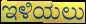
ಇಳಿಯಲು